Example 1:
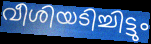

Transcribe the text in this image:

വീശിയടിച്ചിട്ടും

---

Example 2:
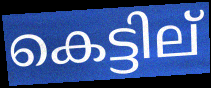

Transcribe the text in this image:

കെട്ടില്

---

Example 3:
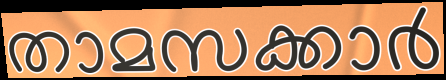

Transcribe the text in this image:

താമസക്കാർ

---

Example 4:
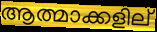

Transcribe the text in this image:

ആത്മാക്കളില്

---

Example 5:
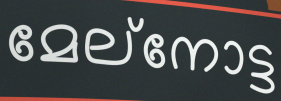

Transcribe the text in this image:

മേല്നോട്ട